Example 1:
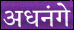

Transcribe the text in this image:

अधनंगे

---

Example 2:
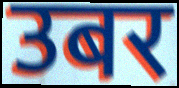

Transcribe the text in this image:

उबर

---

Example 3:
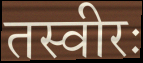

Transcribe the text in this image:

तस्वीरः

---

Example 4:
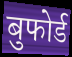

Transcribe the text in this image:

बुफोर्ड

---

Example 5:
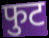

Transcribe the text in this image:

फुट